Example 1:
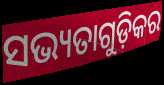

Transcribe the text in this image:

ସଭ୍ୟତାଗୁଡ଼ିକର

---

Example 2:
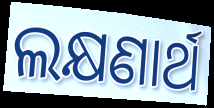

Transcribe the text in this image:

ଲକ୍ଷଣାର୍ଥ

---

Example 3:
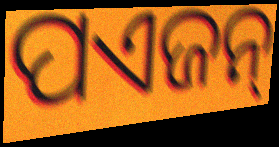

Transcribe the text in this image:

ପଏଜନ୍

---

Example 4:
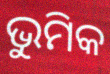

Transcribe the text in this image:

ଭୁମିକ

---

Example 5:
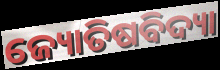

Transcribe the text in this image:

ଜ୍ୟୋତିଷବିଦ୍ୟା